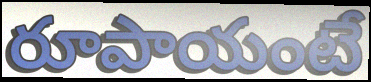
రూపాయంటే